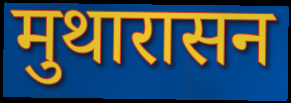
मुथारासन